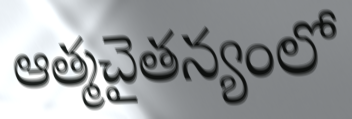
ఆత్మచైతన్యంలో